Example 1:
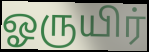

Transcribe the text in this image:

ஓருயிர்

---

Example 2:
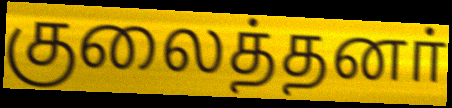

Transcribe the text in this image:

குலைத்தனர்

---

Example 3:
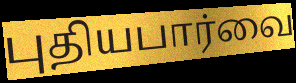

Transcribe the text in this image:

புதியபார்வை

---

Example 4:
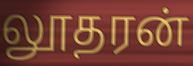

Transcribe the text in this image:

லூதரன்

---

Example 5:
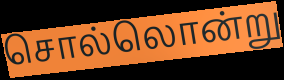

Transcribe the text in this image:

சொல்லொன்று